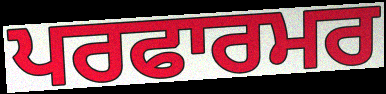
ਪਰਫਾਰਮਰ